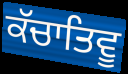
ਕੱਚਾਤਿਵੂ